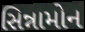
સિન્નામોન